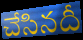
చేసినదీ